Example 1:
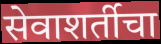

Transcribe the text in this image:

सेवाशर्तीचा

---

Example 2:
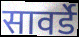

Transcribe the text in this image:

सावर्डे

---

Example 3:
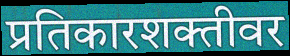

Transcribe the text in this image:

प्रतिकारशक्तीवर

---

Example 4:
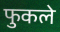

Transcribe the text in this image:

फुकले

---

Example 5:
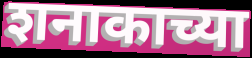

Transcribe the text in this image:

शनाकाच्या